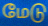
மேடு